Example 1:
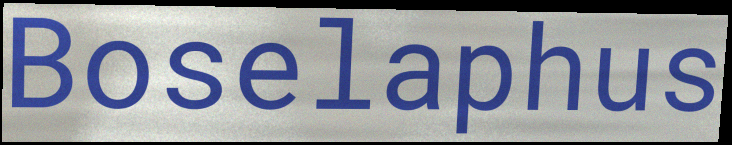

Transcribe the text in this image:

Boselaphus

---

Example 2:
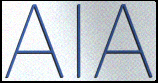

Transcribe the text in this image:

AIA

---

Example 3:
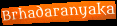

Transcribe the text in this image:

Brhadaranyaka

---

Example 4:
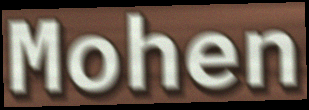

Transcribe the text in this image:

Mohen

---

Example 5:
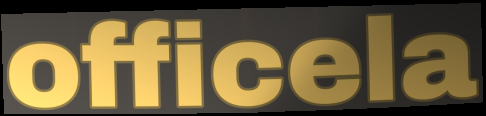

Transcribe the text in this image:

officela